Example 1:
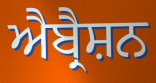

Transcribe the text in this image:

ਐਬ੍ਰੈਸ਼ਨ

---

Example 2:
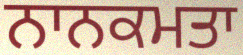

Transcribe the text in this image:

ਨਾਨਕਮਤਾ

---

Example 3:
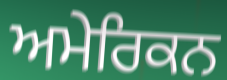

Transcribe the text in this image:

ਅਮੇਰਿਕਨ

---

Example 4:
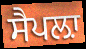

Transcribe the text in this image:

ਸੈਪਲ਼ਾ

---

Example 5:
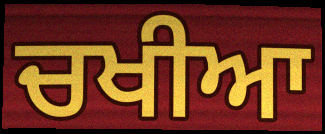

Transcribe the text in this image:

ਚਖੀਆ